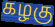
கழகு